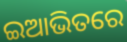
ଇଆଭିତରେ